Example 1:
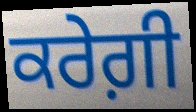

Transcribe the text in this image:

ਕਰੇਗ਼ੀ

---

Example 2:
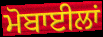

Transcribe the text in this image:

ਮੋਬਾਈਲਾਂ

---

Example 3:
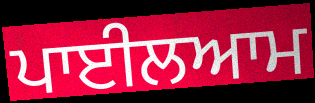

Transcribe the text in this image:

ਪਾਈਲਆਮ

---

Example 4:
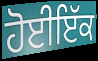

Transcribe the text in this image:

ਹੋਈਇੱਕ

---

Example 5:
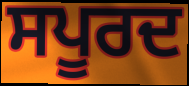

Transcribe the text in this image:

ਸਪੂਰਦ